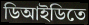
ডিআইডিতে